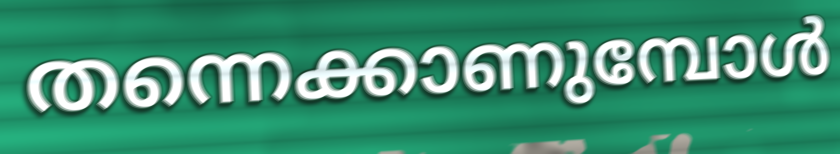
തന്നെക്കാണുമ്പോൾ